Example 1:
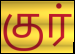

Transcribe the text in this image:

குர்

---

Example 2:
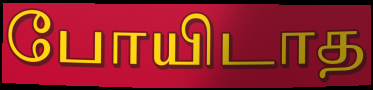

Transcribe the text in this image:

போயிடாத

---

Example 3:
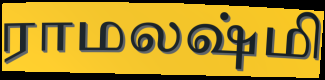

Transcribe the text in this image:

ராமலஷ்மி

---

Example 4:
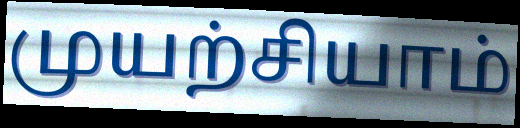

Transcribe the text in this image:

முயற்சியாம்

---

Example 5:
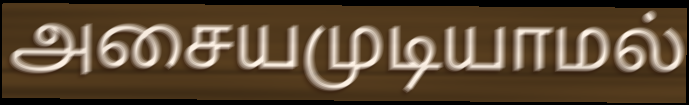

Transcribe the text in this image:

அசையமுடியாமல்